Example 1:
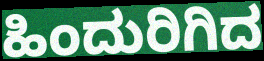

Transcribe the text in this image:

ಹಿಂದುರಿಗಿದ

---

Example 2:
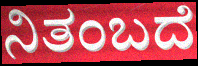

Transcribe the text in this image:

ನಿತಂಬದೆ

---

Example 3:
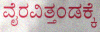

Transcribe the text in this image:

ವೈರವಿತ್ತಂಡಕ್ಕೆ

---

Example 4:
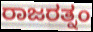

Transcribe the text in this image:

ರಾಜರತ್ನಂ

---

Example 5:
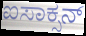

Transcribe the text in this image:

ಐಸಾಕ್ಸನ್